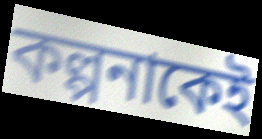
কল্পনাকেই